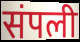
संपली